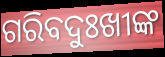
ଗରିବଦୁଃଖୀଙ୍କ